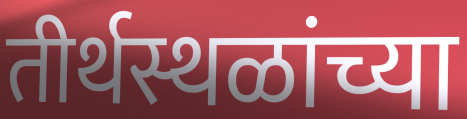
तीर्थस्थळांच्या